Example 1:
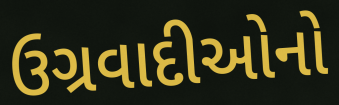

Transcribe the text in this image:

ઉગ્રવાદીઓનો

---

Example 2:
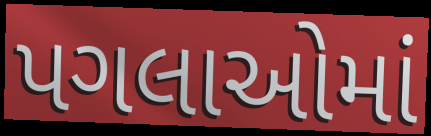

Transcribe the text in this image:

પગલાઓમાં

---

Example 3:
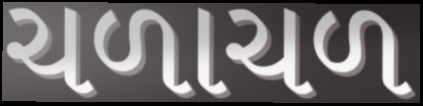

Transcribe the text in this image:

ચળાચળ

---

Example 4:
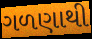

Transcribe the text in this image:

ગળણાથી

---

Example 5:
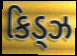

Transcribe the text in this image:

કિડ્ઝ